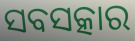
ସବସତ୍କାର